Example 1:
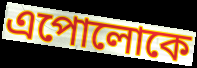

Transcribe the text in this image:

এপোলোকে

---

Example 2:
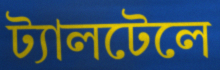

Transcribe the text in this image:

ট্যালটেলে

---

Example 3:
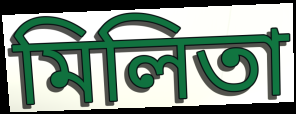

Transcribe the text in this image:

মিলিতা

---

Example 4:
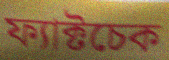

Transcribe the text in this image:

ফ্যাক্টচেক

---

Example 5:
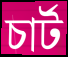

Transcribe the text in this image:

চার্ট